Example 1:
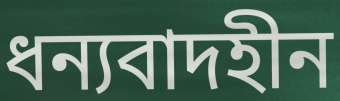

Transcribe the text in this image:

ধন্যবাদহীন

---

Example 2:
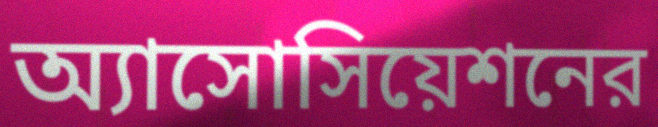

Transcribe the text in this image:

অ্যাসোসিয়েশনের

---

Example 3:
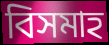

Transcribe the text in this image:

বিসমাহ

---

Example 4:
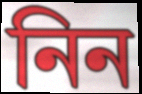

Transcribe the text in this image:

নিন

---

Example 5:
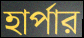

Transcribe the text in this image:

হার্পার